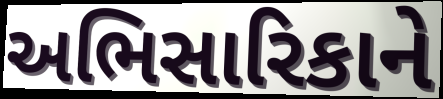
અભિસારિકાને